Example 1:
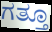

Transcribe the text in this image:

ಗತ್ತೂ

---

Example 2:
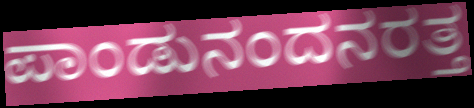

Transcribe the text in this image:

ಪಾಂಡುನಂದನರತ್ತ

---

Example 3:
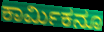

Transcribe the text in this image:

ಕಾರ್ಮಿಕನೂ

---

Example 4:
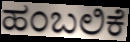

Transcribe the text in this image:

ಹಂಬಲಿಕೆ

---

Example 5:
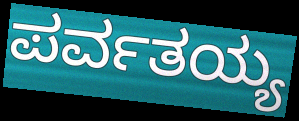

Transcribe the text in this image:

ಪರ್ವತಯ್ಯ